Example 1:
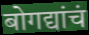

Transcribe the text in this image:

बोगद्यांचं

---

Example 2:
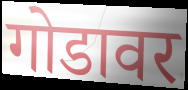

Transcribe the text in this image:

गोडावर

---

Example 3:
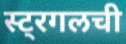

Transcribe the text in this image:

स्ट्रगलची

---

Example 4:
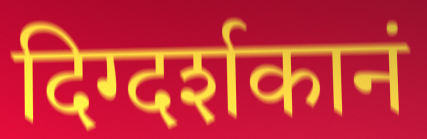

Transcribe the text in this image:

दिग्दर्शकानं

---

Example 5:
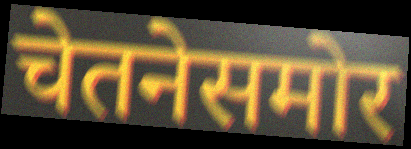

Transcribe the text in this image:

चेतनेसमोर